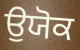
ਉਯੋਕ